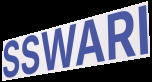
SSWARI